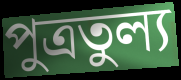
পুত্রতুল্য